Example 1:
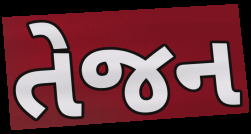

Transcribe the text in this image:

તેજન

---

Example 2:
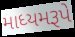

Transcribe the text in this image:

માધ્યમરૂપે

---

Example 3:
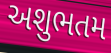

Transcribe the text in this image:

અશુભતમ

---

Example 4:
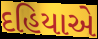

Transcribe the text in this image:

દહિયાએ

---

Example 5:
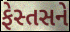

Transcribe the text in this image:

ફેસ્તસને